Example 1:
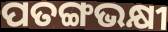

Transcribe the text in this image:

ପତଙ୍ଗଭକ୍ଷୀ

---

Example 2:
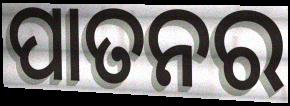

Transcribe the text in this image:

ପାତନର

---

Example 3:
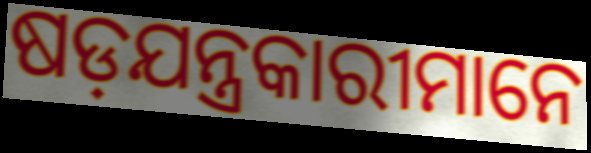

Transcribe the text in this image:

ଷଡ଼ଯନ୍ତ୍ରକାରୀମାନେ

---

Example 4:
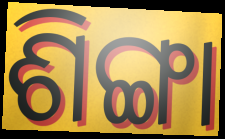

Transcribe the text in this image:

ଶିଙ୍ଗା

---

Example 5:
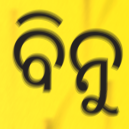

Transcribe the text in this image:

ବିନୁ